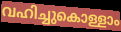
വഹിച്ചുകൊള്ളാം